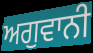
ਅਗੁਵਾਨੀ